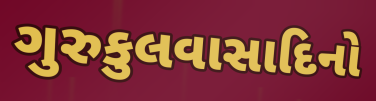
ગુરુકુલવાસાદિનો